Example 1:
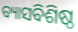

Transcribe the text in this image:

ବ୍ୟାସବିଶିଷ୍ଠ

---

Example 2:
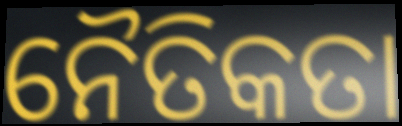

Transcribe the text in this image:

ନୈତିକତା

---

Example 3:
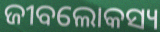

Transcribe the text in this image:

ଜୀବଲୋକସ୍ୟ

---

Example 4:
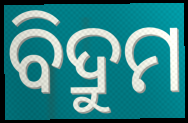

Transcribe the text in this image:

ବିଦ୍ରୁମ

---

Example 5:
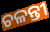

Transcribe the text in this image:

ଚଳନ୍ତୀ